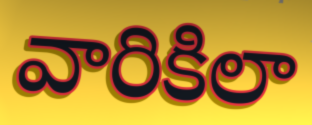
వారికిలా